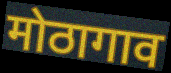
मोठागाव